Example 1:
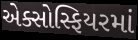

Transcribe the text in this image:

એક્સોસ્ફિયરમાં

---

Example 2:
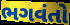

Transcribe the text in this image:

ભગવંતો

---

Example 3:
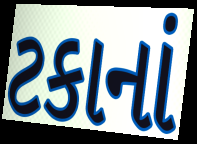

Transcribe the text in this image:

ટકાનાં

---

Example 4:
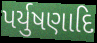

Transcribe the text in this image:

પર્યુષણાદિ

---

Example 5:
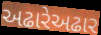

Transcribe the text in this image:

અઢારેઅઢાર